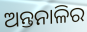
ଅନ୍ତନାଳିର